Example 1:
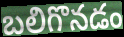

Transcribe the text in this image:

బలిగొనడం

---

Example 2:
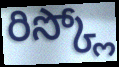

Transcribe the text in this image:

రిస్క్లో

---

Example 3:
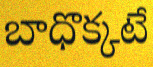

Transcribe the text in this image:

బాధొక్కటే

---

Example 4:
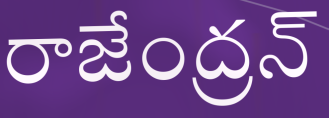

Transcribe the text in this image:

రాజేంద్రన్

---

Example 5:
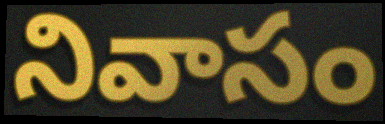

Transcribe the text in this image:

నివాసం